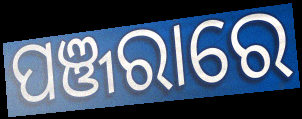
ପଞ୍ଜରାରେ